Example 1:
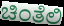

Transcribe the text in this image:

ಚಿಂತೆಲಿ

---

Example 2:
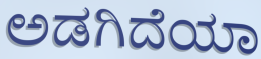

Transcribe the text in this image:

ಅಡಗಿದೆಯಾ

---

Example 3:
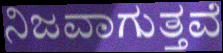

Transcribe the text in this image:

ನಿಜವಾಗುತ್ತವೆ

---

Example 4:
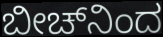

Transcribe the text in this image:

ಬೀಚ್‌ನಿಂದ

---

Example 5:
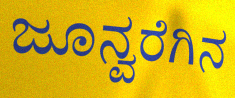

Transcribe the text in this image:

ಜೂನ್ವರೆಗಿನ